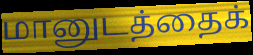
மானுடத்தைக்